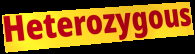
Heterozygous